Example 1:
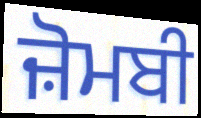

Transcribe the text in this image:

ਜ਼ੋਮਬੀ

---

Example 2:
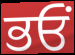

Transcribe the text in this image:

ਭਓਂ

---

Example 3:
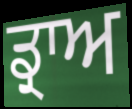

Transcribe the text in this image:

ਡ੍ਰਾਅ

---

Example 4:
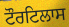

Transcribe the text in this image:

ਟੌਰਟਿਲਾਸ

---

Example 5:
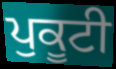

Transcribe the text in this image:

ਪੁਕੂਟੀ